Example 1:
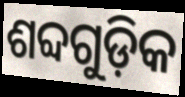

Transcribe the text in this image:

ଶବ୍ଦଗୁଡ଼ିକ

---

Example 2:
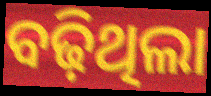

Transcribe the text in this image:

ବଢ଼ିଥିଲା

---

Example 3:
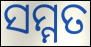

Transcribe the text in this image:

ସମ୍ମତ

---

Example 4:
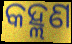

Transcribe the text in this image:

କହ୍ଲଣ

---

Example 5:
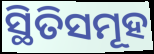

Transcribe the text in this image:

ସ୍ଥିତିସମୂହ